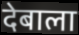
देबाला